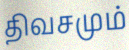
திவசமும்